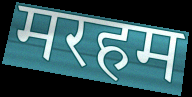
मरहम